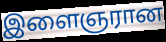
இளைஞரான